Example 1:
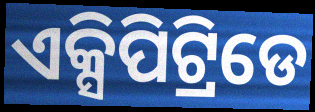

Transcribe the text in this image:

ଏକ୍ସିପିଟ୍ରିଡେ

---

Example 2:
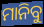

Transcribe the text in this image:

ମାନିବୁ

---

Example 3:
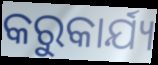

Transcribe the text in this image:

କରୁକାର୍ଯ୍ୟ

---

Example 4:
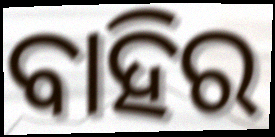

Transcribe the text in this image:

ବାହିର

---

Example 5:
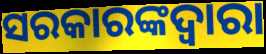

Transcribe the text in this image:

ସରକାରଙ୍କଦ୍ବାରା